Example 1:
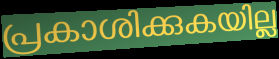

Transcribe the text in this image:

പ്രകാശിക്കുകയില്ല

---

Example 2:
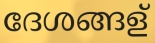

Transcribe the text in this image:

ദേശങ്ങള്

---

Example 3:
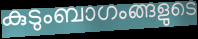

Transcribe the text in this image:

കുടുംബാഗംങ്ങളുടെ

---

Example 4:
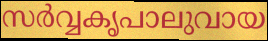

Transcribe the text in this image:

സർവ്വകൃപാലുവായ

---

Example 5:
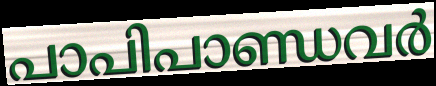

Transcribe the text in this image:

പാപിപാണ്ഡവർ